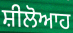
ਸ਼ੀਲੋਆਹ